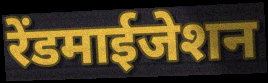
रेंडमाईजेशन